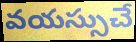
వయస్సుచే